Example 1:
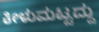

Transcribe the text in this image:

ಕೀಳುಮಟ್ಟದ್ದು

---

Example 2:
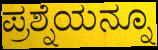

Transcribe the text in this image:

ಪ್ರಶ್ನೆಯನ್ನೂ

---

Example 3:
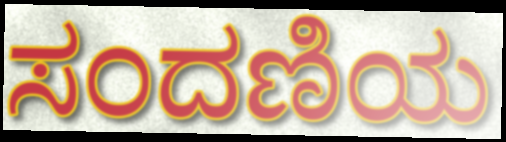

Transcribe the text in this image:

ಸಂದಣಿಯ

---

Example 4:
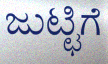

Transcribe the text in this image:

ಜುಟ್ಟಿಗೆ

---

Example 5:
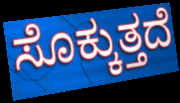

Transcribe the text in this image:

ಸೊಕ್ಕುತ್ತದೆ